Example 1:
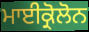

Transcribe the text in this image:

ਮਾਈਕ੍ਰੋਲੋਨ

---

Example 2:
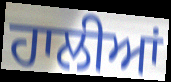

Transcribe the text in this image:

ਹਾਲੀਆਂ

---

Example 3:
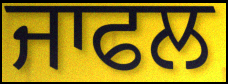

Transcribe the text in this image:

ਜਾਫਲ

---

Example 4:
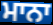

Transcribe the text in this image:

ਮਾਨਾ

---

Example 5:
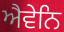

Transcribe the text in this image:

ਐਵੇਨਿ